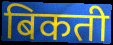
बिकती